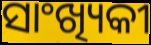
ସାଂଖ୍ୟିକୀ